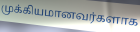
முக்கியமானவர்களாக